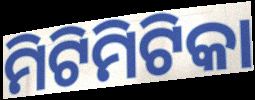
ମିଟିମିଟିକା